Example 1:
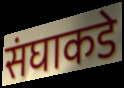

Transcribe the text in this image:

संघाकडे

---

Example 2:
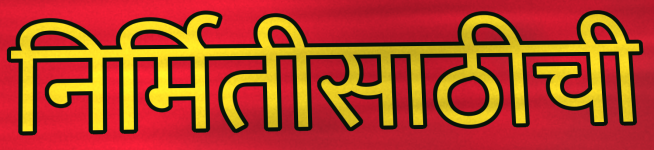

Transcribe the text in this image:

निर्मितीसाठीची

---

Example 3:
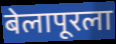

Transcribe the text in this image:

बेलापूरला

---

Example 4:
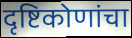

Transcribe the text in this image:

दृष्टिकोणांचा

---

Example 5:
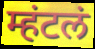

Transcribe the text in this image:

म्हंटलं